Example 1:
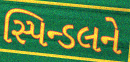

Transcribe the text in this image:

સ્પિન્ડલને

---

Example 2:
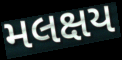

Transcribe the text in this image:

મલક્ષય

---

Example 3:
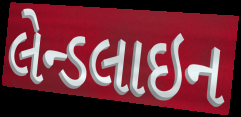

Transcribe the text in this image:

લેન્ડલાઇન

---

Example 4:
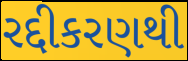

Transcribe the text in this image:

રદ્દીકરણથી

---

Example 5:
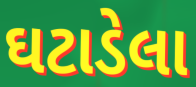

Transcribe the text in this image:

ઘટાડેલા